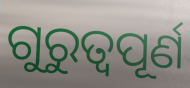
ଗୁରୁତ୍ୱପୂର୍ଣ